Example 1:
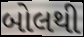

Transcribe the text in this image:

બોલથી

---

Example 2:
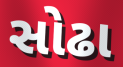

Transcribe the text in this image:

સોઢા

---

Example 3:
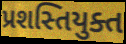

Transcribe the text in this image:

પ્રશસ્તિયુક્ત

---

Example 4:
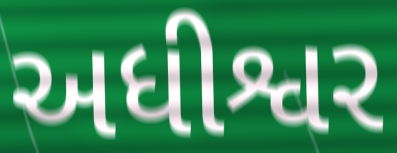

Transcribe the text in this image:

અધીશ્વર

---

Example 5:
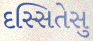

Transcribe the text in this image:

દસ્સિતેસુ